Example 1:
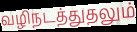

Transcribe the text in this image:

வழிநடத்துதலும்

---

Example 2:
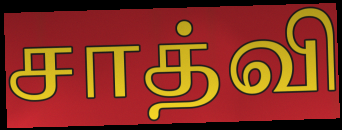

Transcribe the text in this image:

சாத்வி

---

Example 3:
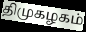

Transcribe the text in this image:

திமுகழகம்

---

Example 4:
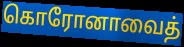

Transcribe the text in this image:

கொரோனாவைத்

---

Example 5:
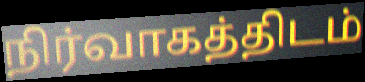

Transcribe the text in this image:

நிர்வாகத்திடம்